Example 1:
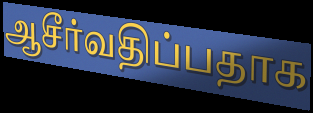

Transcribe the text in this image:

ஆசீர்வதிப்பதாக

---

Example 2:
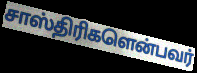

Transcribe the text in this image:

சாஸ்திரிகளென்பவர்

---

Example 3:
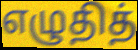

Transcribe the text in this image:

எழுதித்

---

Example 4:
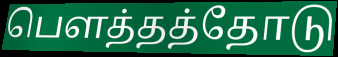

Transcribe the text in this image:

பௌத்தத்தோடு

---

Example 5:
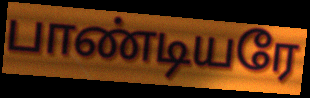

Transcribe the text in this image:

பாண்டியரே